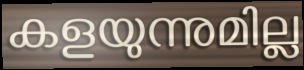
കളയുന്നുമില്ല